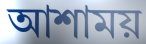
আশাময়